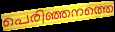
പെരിഞ്ഞനത്തെ